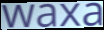
waxa